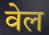
वेल